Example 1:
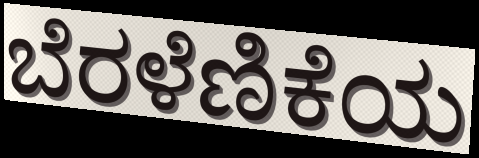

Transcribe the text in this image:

ಬೆರಳೆಣಿಕೆಯ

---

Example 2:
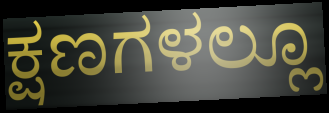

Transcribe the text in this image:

ಕ್ಷಣಗಳಲ್ಲೂ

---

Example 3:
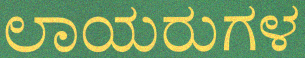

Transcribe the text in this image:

ಲಾಯರುಗಳ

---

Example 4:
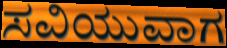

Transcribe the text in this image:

ಸವಿಯುವಾಗ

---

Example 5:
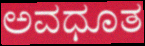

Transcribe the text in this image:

ಅವಧೂತ